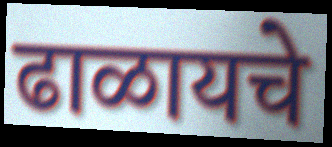
ढाळायचे